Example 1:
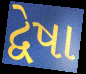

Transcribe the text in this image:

દ્વેષા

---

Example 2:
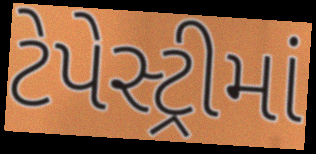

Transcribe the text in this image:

ટેપેસ્ટ્રીમાં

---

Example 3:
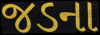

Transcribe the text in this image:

જડના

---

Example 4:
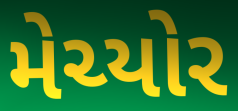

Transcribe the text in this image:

મેચ્યોર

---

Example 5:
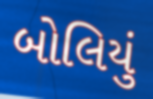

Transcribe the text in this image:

બોલિયું